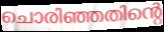
ചൊരിഞ്ഞതിന്റെ